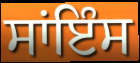
ਸਾਂਇੰਸ